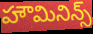
హౌమినిన్స్